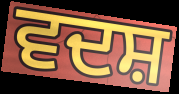
ਵਦਸ਼